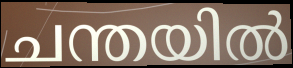
ചന്തയിൽ